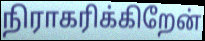
நிராகரிக்கிறேன்